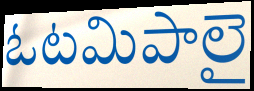
ఓటమిపాలై